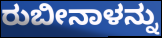
ರುಬೀನಾಳನ್ನು